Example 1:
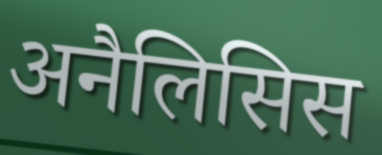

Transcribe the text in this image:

अनैलिसिस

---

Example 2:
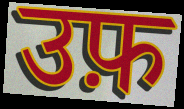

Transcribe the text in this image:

उफ़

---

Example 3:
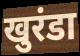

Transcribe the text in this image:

खुरंडा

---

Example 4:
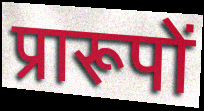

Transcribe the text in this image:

प्रारूपों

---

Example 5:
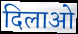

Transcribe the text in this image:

दिलाओ